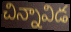
చిన్నావిడ